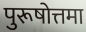
पुरूषोत्तमा